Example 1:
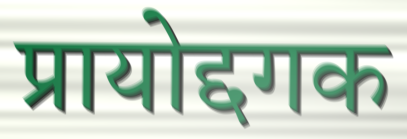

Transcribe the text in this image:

प्रायोद्दगक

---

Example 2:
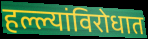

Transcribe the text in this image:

हल्ल्यांविरोधात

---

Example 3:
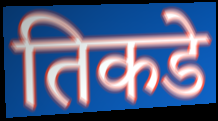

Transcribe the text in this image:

तिकडे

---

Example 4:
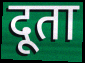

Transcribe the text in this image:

दूता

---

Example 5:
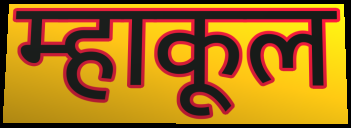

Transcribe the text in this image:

म्हाकूल